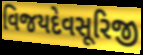
વિજયદેવસૂરિજી